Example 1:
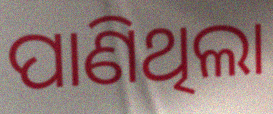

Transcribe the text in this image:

ପାଣିଥିଲା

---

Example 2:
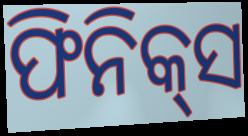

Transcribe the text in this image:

ଫିନିକ୍‍ସ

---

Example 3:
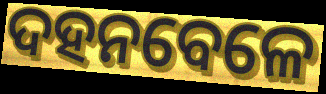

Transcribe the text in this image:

ଦହନବେଳେ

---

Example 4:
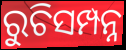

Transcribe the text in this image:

ରୁଚିସମ୍ପନ୍ନ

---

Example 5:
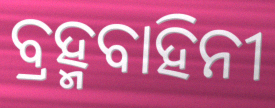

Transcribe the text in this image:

ବ୍ରହ୍ମବାହିନୀ